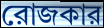
রোজকার